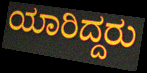
ಯಾರಿದ್ದರು